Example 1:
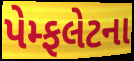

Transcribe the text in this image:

પેમ્ફલેટના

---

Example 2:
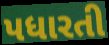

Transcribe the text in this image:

પધારતી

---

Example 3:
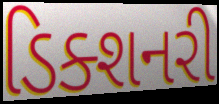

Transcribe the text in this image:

ડિક્શનરી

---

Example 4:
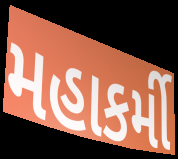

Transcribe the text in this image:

મહાકર્મી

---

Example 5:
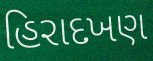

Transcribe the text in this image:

હિરાદખણ